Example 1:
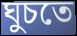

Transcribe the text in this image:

ঘুচতে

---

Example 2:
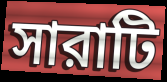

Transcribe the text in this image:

সারাটি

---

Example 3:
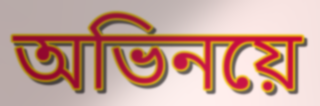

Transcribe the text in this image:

অভিনয়ে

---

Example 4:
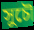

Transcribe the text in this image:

সুচৌ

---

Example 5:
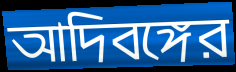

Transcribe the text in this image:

আদিবঙ্গের